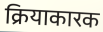
क्रियाकारक